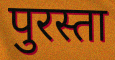
पुरस्ता